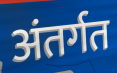
अंतर्गत